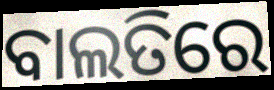
ବାଲତିରେ